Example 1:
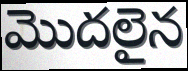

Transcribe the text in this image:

మొదలైన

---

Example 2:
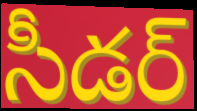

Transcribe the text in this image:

సీడర్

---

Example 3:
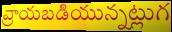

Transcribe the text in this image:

వ్రాయబడియున్నట్లుగ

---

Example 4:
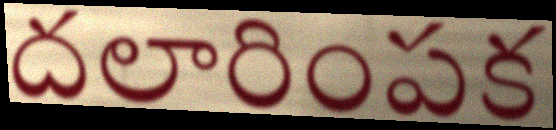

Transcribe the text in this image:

దలారింపక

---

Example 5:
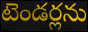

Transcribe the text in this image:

టెండర్లను